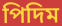
পিদিম